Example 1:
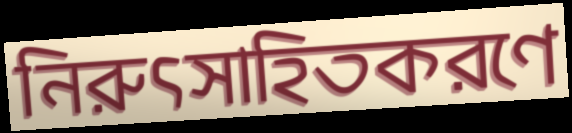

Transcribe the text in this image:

নিরুৎসাহিতকরণে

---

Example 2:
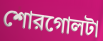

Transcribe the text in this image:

শোরগোলটা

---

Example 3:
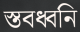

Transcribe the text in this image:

স্তবধ্বনি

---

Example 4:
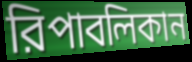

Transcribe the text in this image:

রিপাবলিকান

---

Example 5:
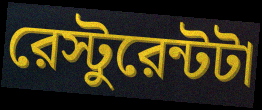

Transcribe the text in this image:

রেস্টুরেন্টটা